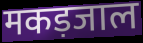
मकड़जाल